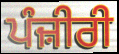
ਪੰਜ਼ੀਰੀ